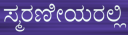
ಸ್ಮರಣೀಯರಲ್ಲಿ